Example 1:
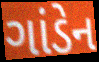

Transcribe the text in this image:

ગાંડેન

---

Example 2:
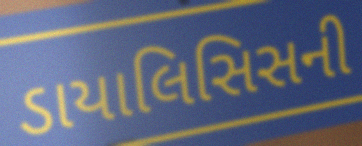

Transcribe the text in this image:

ડાયાલિસિસની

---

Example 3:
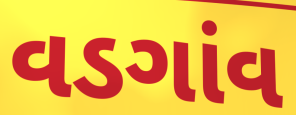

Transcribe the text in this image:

વડગાંવ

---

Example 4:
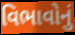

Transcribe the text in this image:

વિભાવોનું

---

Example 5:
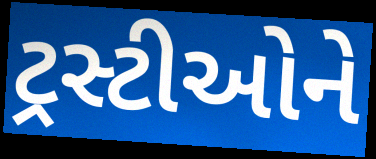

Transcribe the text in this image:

ટ્રસ્ટીઓને